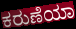
ಕರುಣೆಯಾ